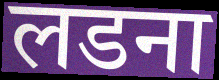
लडना